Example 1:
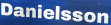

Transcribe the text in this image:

Danielsson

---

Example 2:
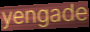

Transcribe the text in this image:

yengade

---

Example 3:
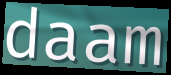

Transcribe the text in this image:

daam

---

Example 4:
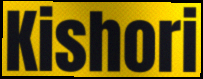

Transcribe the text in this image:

Kishori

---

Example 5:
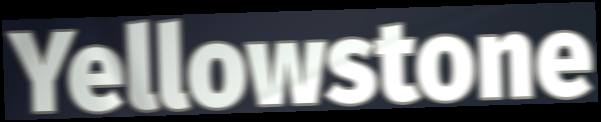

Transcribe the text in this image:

Yellowstone